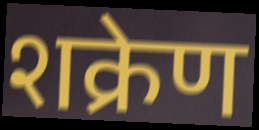
शक्रेण